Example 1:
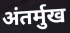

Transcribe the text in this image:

अंतर्मुख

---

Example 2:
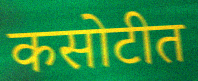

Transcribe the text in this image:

कसोटीत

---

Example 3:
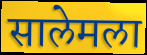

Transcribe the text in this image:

सालेमला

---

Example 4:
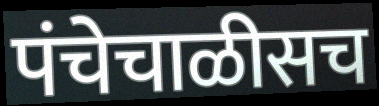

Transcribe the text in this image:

पंचेचाळीसच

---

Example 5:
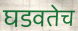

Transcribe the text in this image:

घडवतेच